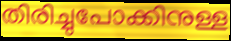
തിരിച്ചുപോക്കിനുള്ള